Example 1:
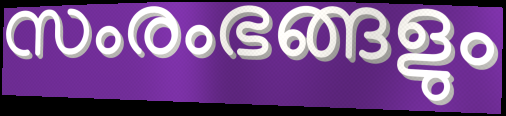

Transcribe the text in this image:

സംരംഭങ്ങളും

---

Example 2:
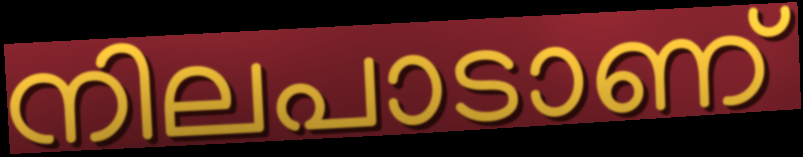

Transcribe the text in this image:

നിലപാടാണ്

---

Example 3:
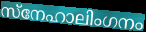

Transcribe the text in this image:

സ്നേഹാലിംഗനം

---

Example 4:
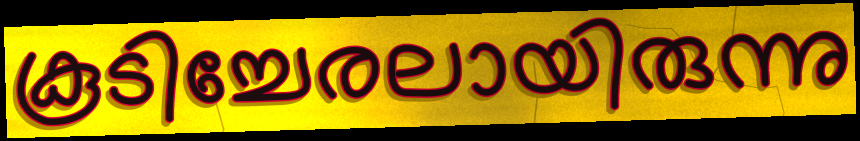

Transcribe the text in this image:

കൂടിച്ചേരലായിരുന്നു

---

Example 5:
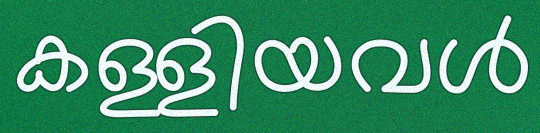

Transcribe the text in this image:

കള്ളിയവൾ